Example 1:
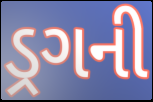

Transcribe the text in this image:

ડ્રગની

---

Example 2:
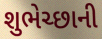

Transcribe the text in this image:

શુભેચ્છાની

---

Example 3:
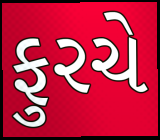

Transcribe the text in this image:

ફુરચે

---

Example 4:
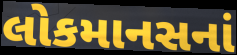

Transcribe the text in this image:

લોકમાનસનાં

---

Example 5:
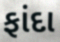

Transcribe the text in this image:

ફાંદા